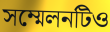
সম্মেলনটিও